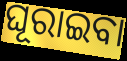
ଘୂରାଇବା